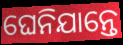
ଘେନିଯାନ୍ତେ